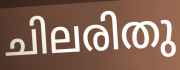
ചിലരിതു